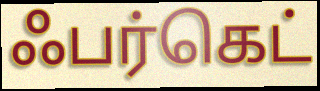
ஃபர்கெட்